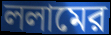
ললামের